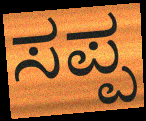
ಸಪ್ಪ